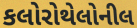
કલોરોથેલોનીલ